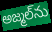
అజ్మల్‌ను